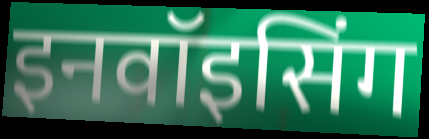
इनवॉइसिंग